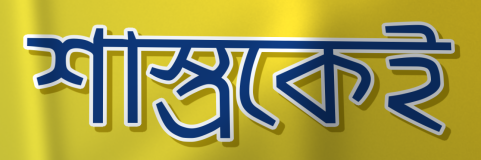
শাস্ত্রকেই